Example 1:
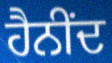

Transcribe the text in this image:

ਹੈਨੀਂਦ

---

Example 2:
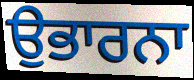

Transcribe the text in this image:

ਉਭਾਰਨਾ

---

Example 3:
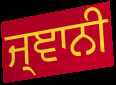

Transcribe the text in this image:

ਜ੍ਞਾਨੀ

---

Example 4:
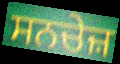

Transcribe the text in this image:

ਸਨਚੇਜ਼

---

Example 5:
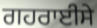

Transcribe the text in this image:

ਗਹਰਾਈਸੇ